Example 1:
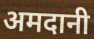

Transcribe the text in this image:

अमदानी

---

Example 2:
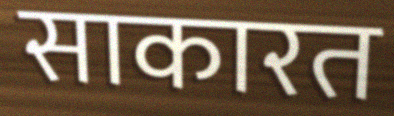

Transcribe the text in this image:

साकारत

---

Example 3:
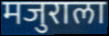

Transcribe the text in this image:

मजुराला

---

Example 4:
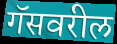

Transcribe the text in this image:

गॅसवरील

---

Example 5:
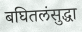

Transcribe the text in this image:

बघितलंसुद्धा